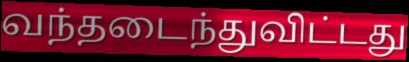
வந்தடைந்துவிட்டது